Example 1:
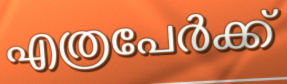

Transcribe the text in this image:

എത്രപേർക്ക്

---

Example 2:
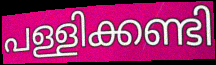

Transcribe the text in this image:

പള്ളിക്കണ്ടി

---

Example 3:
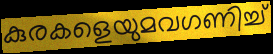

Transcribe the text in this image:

കുരകളെയുമവഗണിച്ച്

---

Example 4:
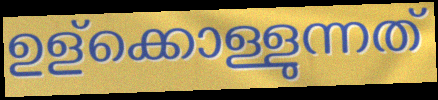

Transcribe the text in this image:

ഉള്ക്കൊള്ളുന്നത്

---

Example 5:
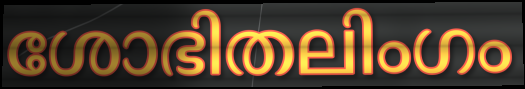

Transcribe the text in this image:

ശോഭിതലിംഗം